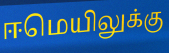
ஈமெயிலுக்கு